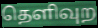
தெளிவுற